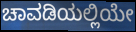
ಚಾವಡಿಯಲ್ಲಿಯೇ